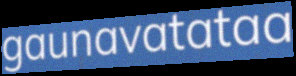
gaunavatataa